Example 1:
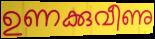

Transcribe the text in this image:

ഉണക്കുവീണു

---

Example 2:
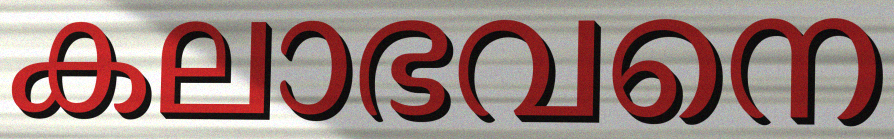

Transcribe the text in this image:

കലാഭവനെ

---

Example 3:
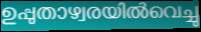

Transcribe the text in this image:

ഉപ്പുതാഴ്വരയിൽവെച്ചു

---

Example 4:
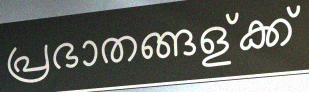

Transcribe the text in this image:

പ്രഭാതങ്ങള്ക്ക്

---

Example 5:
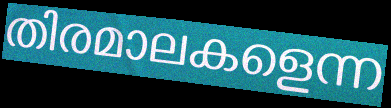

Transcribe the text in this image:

തിരമാലകളെന്ന